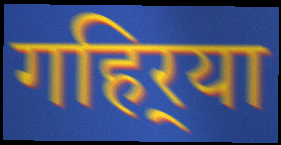
गहिर्या